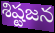
శిష్టజన